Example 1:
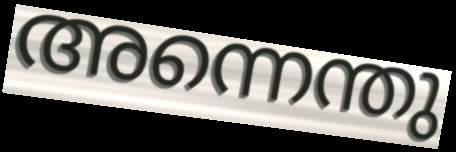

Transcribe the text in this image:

അന്നെന്തു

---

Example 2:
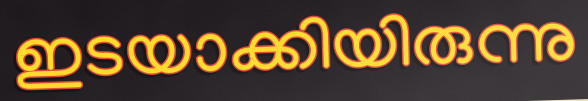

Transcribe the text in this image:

ഇടയാക്കിയിരുന്നു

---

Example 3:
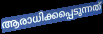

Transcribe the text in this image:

ആരാധിക്കപ്പെടുന്നത്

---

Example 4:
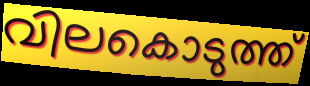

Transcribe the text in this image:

വിലകൊടുത്ത്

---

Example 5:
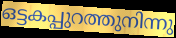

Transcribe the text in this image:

ഒട്ടകപ്പുറത്തുനിന്നു